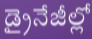
డ్రైనేజీల్లో